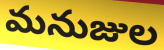
మనుజుల